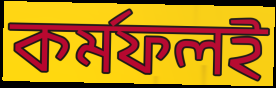
কর্মফলই